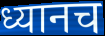
ध्यानच